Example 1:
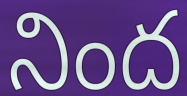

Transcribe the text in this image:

నింద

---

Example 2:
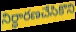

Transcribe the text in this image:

నిర్ధారణచేసికొని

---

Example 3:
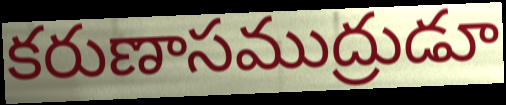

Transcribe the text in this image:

కరుణాసముద్రుడూ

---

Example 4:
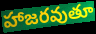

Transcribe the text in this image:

హాజరవుతూ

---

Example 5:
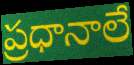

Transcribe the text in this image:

ప్రధానాలే